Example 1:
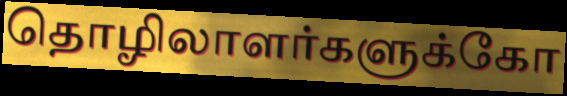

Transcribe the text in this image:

தொழிலாளர்களுக்கோ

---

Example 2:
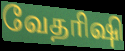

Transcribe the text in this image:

வேதரிஷி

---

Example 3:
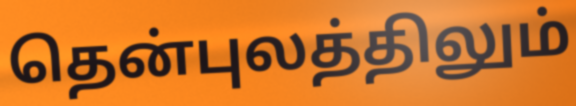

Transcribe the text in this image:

தென்புலத்திலும்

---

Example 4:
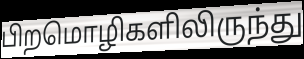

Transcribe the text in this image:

பிறமொழிகளிலிருந்து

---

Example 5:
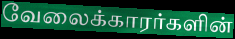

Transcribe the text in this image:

வேலைக்காரர்களின்